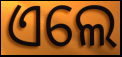
ଏଲେ